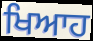
ਖਿਆਹ